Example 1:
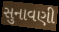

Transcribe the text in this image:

સુનાવણી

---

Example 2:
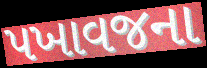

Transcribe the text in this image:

પખાવજના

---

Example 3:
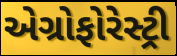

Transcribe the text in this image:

એગ્રોફોરેસ્ટ્રી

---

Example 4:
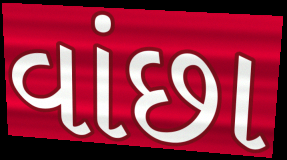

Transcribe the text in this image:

વાંછા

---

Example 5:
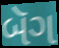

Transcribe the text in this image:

બૅગ